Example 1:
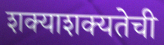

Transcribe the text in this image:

शक्याशक्यतेची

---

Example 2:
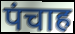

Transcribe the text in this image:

पंचाह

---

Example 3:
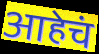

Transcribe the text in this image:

आहेचं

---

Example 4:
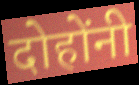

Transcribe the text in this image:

दोहोंनी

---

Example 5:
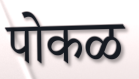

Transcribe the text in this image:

पोकळ